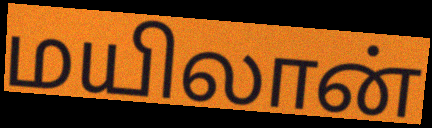
மயிலான்